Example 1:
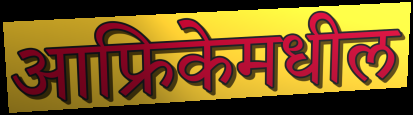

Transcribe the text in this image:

आफ्रिकेमधील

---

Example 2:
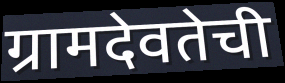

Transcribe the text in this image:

ग्रामदेवतेची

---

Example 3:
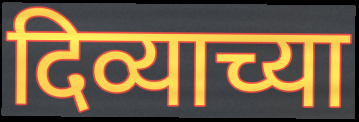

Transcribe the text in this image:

दिव्याच्या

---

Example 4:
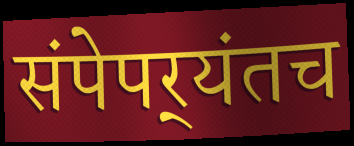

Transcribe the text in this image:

संपेपर्यंतच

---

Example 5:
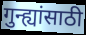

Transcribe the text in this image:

गुन्ह्यांसाठी